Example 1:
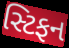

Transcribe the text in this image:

સ્ટિફન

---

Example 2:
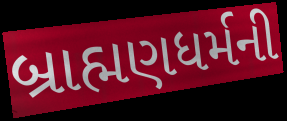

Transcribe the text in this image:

બ્રાહ્મણધર્મની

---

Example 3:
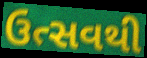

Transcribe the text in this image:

ઉત્સવથી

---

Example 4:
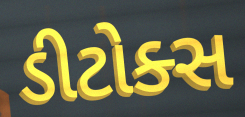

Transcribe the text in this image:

ડીટોક્સ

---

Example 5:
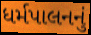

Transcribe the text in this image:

ધર્મપાલનનું